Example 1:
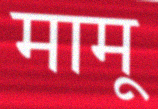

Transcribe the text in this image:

मामू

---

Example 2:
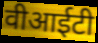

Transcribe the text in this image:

वीआईटी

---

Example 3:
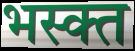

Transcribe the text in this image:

भस्क्त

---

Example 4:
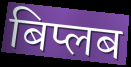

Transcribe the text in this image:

बिप्लब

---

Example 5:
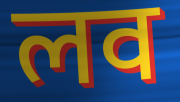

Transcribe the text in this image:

लव